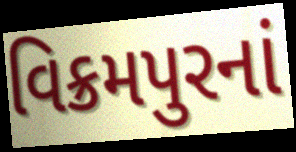
વિક્રમપુરનાં